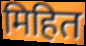
मिहित